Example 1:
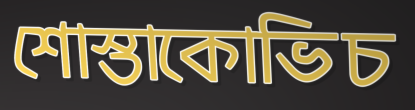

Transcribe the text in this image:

শোস্তাকোভিচ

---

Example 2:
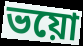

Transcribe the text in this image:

ভয়ো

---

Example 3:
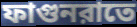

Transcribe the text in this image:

ফাগুনরাতে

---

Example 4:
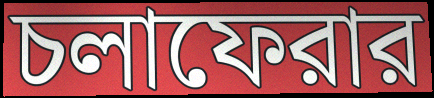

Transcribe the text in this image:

চলাফেরার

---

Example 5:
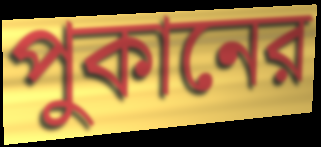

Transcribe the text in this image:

পুকানের